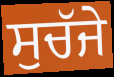
ਸੁਚੱਜੇ